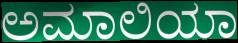
ಅಮಾಲಿಯಾ